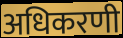
अधिकरणी